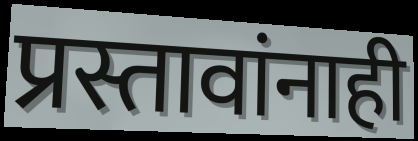
प्रस्तावांनाही